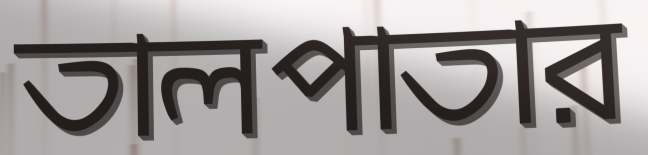
তালপাতার